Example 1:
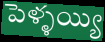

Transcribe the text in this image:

పెళ్ళయ్యి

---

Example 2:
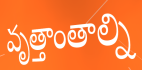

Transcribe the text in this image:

వృత్తాంతాల్ని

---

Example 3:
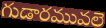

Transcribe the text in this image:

గుడారమువలె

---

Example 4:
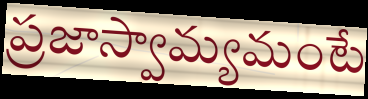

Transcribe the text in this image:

ప్రజాస్వామ్యమంటే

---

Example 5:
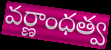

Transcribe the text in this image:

వర్ణాంధత్వ